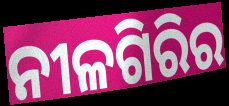
ନୀଳଗିରିର